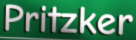
Pritzker